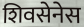
शिवसेनेस